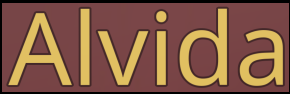
Alvida